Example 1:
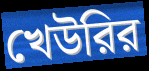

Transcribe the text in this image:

খেউরির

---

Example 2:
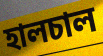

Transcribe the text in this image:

হালচাল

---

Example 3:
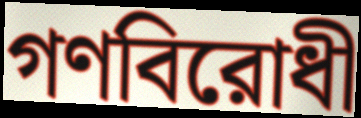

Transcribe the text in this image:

গণবিরোধী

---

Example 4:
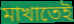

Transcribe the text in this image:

মাখাতেই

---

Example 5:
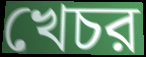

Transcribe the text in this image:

খেচর